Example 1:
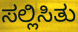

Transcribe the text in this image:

ಸಲ್ಲಿಸಿತು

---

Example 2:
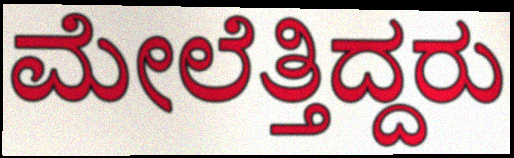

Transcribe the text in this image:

ಮೇಲೆತ್ತಿದ್ದರು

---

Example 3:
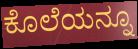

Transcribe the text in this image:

ಕೊಲೆಯನ್ನೂ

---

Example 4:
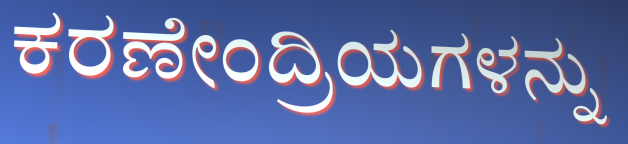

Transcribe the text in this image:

ಕರಣೇಂದ್ರಿಯಗಳನ್ನು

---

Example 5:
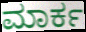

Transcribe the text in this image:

ಮಾರ್ಕ